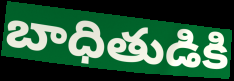
బాధితుడికి